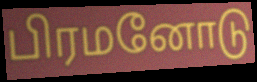
பிரமனோடு